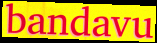
bandavu